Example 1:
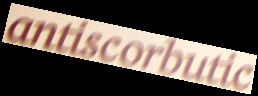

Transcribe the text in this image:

antiscorbutic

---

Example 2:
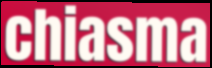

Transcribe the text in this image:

chiasma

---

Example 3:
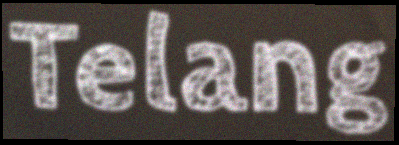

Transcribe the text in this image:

Telang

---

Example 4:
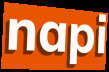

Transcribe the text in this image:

napi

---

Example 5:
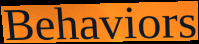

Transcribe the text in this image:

Behaviors